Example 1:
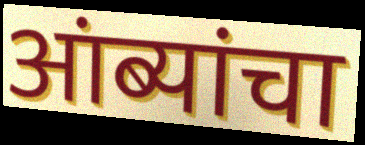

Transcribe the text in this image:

आंब्यांचा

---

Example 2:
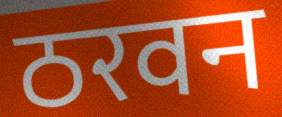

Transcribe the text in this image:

ठरवन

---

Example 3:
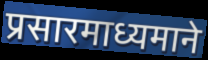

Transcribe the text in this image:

प्रसारमाध्यमाने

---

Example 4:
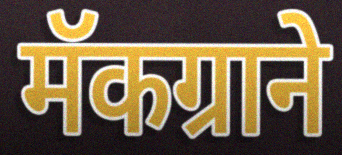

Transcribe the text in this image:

मॅकग्राने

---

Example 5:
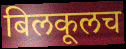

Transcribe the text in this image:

बिलकूलच